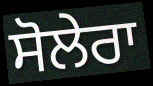
ਸੋਲੇਰਾ